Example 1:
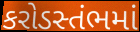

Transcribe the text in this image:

કરોડસ્તંભમાં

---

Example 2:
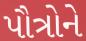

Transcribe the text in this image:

પૌત્રોને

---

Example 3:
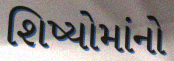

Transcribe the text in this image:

શિષ્યોમાંનો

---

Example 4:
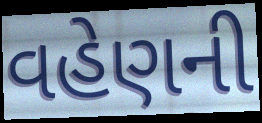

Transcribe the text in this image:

વહેણની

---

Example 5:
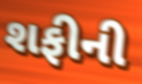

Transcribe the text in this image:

શફીની